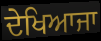
ਦੇਖਿਆਜਾ